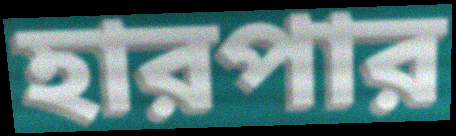
হারপার